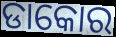
ଡାକୋର